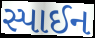
સ્પાઈન